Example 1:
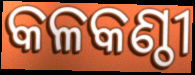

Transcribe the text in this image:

କଳକଣ୍ଠୀ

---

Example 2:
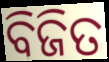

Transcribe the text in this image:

ବିଜିତ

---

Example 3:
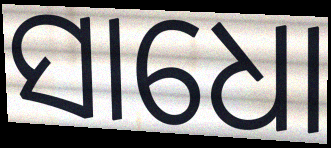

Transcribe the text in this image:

ସାଧୋ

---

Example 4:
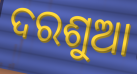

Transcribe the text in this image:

ଦରଶୁଆ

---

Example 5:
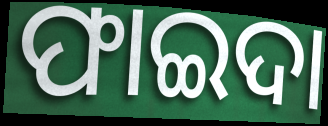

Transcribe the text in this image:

ଫାଇଦା